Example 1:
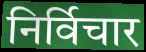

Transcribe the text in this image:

निर्विचार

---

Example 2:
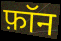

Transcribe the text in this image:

फ़ॉन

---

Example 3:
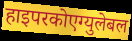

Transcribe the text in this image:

हाइपरकोएग्युलेबल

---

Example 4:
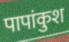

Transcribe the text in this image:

पापांकुश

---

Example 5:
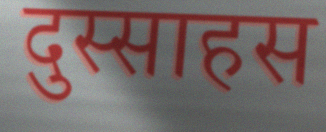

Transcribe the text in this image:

दुस्साहस